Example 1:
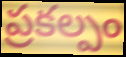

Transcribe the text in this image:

ప్రకల్పం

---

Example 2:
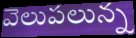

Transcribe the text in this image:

వెలుపలున్న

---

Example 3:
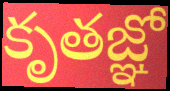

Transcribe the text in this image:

కృతజ్ఞో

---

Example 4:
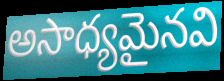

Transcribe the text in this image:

అసాధ్యమైనవి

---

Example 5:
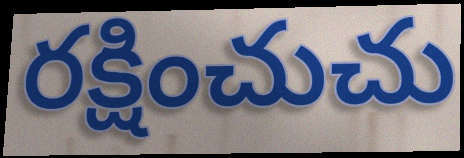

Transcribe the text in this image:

రక్షించుచు